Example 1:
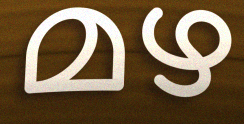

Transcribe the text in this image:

മഴ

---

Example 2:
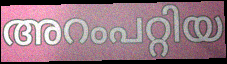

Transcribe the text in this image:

അറംപറ്റിയ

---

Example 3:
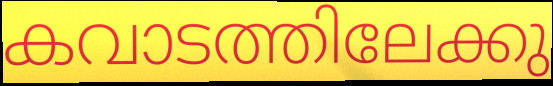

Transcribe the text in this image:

കവാടത്തിലേക്കു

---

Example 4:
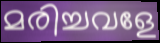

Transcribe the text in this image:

മരിച്ചവളേ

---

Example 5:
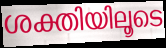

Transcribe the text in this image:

ശക്തിയിലൂടെ